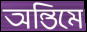
অন্তিমে